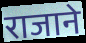
राजाने